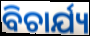
ବିଚାର୍ଯ୍ୟ